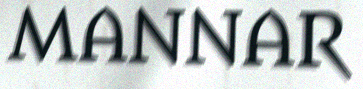
MANNAR